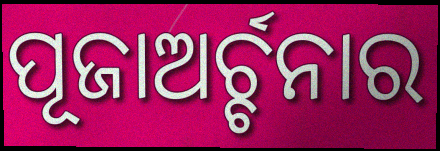
ପୂଜାଅର୍ଚ୍ଚନାର